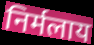
निर्मलाय